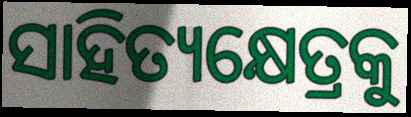
ସାହିତ୍ୟକ୍ଷେତ୍ରକୁ